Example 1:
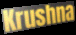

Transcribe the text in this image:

Krushna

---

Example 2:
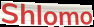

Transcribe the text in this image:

Shlomo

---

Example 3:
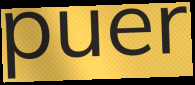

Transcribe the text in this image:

puer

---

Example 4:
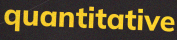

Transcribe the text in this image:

quantitative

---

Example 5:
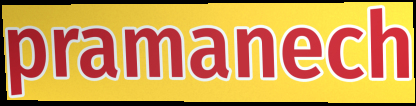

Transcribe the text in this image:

pramanech